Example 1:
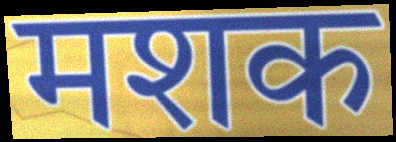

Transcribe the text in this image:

मशक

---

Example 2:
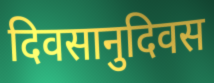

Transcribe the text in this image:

दिवसानुदिवस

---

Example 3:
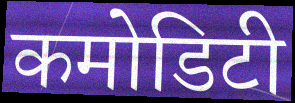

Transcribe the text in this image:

कमोडिटी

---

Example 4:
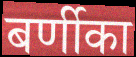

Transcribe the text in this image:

बर्णीका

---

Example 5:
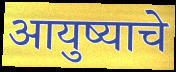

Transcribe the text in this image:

आयुष्याचे